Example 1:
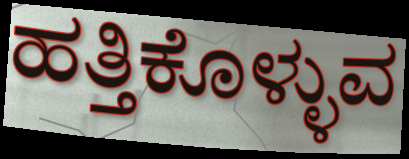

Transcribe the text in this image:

ಹತ್ತಿಕೊಳ್ಳುವ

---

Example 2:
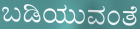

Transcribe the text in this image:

ಬಡಿಯುವಂತೆ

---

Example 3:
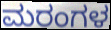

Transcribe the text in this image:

ಮರಂಗಳ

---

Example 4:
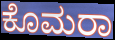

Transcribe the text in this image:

ಕೊಮರಾ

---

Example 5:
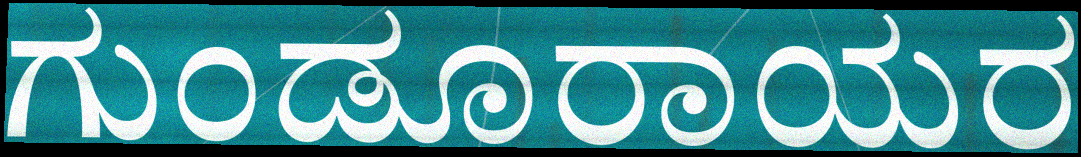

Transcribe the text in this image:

ಗುಂಡೂರಾಯರ